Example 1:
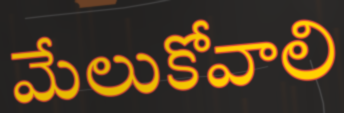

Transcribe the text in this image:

మేలుకోవాలి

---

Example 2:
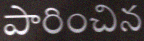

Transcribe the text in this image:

పారించిన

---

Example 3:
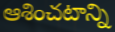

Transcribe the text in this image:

ఆశించటాన్ని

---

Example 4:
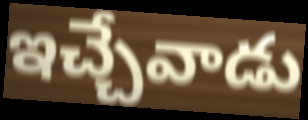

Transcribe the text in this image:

ఇచ్చేవాడు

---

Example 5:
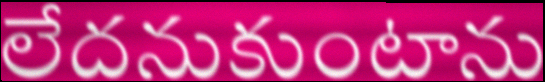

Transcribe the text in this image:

లేదనుకుంటాను